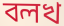
বলখ